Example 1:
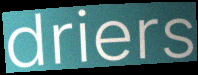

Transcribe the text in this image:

driers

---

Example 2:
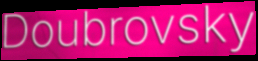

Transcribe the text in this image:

Doubrovsky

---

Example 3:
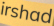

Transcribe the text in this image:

irshad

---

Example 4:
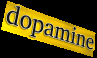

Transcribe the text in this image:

dopamine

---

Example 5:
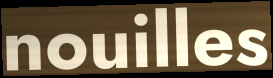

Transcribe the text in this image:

nouilles